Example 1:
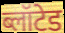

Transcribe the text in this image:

ब्लॉटेड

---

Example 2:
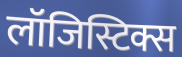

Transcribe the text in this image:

लॉजिस्टिक्स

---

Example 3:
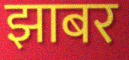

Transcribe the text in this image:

झाबर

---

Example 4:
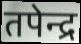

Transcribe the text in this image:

तपेन्द्र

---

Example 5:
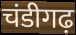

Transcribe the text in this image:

चंडीगढ़